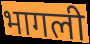
भागली